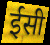
ईसी